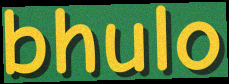
bhulo